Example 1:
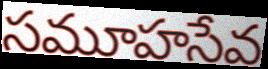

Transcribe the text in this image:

సమూహసేవ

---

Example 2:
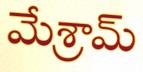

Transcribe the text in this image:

మేశ్రామ్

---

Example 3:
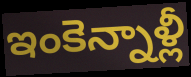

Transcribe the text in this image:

ఇంకెన్నాళ్లీ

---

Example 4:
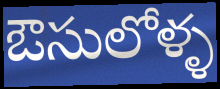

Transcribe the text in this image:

ఔసులోళ్ళ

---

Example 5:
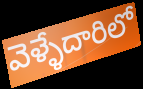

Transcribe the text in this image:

వెళ్ళేదారిలో